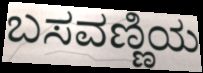
ಬಸವಣ್ಣಿಯ